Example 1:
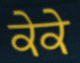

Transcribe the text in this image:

ਕੇਕੇ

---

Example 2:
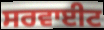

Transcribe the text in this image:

ਸਰਵਾਈਟ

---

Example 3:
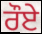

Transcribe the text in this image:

ਰੌਏ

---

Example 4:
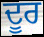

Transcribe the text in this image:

ਦੂਰ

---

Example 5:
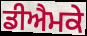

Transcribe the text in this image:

ਡੀਐਮਕੇ